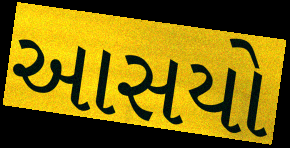
આસયો